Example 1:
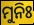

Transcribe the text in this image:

ମୁନିଃ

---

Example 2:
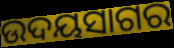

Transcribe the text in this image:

ଉଦୟସାଗର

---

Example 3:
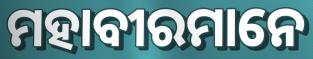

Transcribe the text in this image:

ମହାବୀରମାନେ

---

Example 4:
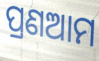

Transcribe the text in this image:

ପ୍ରଣଆମ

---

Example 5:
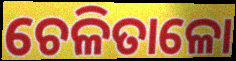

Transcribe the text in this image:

ଚେଳିତାଳୋ